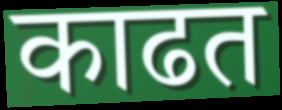
काढत